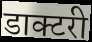
डाक्टरी